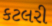
કટલરી